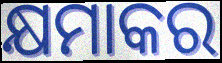
କ୍ଷମାକର